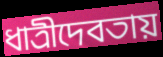
ধাত্রীদেবতায়